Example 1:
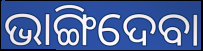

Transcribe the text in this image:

ଭାଙ୍ଗିଦେବା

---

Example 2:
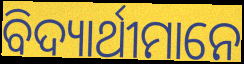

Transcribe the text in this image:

ବିଦ୍ୟାର୍ଥୀମାନେ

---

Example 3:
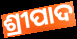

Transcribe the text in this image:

ଶ୍ରୀପାଦ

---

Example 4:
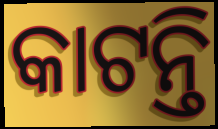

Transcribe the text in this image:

କାଟନ୍ତି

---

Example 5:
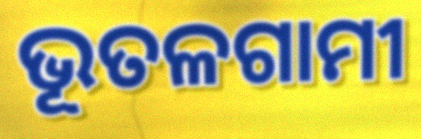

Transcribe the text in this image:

ଭୂତଳଗାମୀ